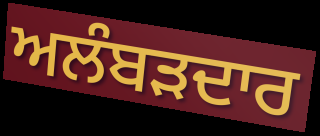
ਅਲੰਬੜਦਾਰ